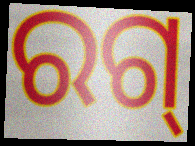
ରଗ୍